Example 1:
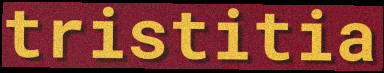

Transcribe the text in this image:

tristitia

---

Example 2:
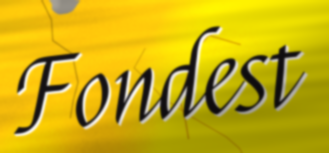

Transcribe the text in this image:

Fondest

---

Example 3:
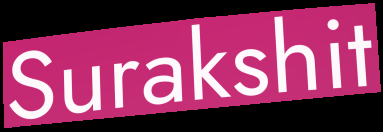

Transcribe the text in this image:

Surakshit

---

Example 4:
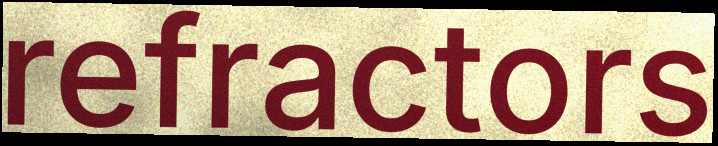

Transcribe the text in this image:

refractors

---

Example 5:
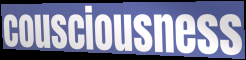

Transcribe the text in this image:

cousciousness